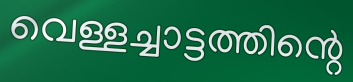
വെള്ളച്ചാട്ടത്തിന്റെ